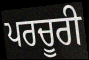
ਪਰਚੂਰੀ